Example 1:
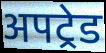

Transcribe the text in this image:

अपट्रेड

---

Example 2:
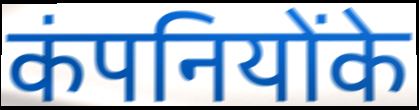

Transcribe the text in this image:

कंपनियोंके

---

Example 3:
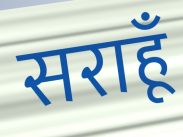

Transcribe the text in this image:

सराहूँ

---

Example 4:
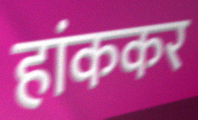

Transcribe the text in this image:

हांककर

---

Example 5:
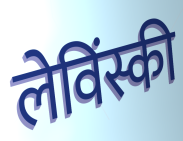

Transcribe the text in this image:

लेविंस्की